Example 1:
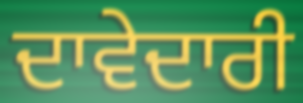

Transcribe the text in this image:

ਦਾਵੇਦਾਰੀ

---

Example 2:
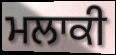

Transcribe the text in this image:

ਮਲਾਕੀ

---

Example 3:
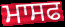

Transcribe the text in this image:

ਮਾਸਫ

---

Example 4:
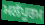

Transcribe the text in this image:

ਮਲੱਪੂਰਮ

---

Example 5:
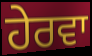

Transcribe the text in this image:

ਹੇਰਵਾ